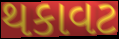
થકાવટ